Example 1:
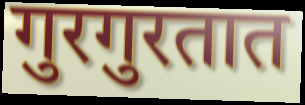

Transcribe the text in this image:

गुरगुरतात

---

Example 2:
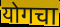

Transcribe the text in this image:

योगचा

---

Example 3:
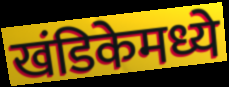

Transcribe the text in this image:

खंडिकेमध्ये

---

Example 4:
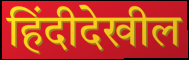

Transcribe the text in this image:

हिंदीदेखील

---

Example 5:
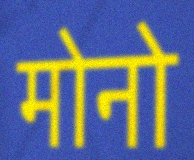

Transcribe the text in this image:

मोनो